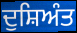
ਦੁਸ਼ਿਅੰਤ